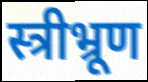
स्त्रीभ्रूण